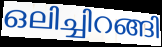
ഒലിച്ചിറങ്ങി